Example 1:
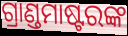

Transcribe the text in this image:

ଗ୍ରାଣ୍ଡମାଷ୍ଟରଙ୍କ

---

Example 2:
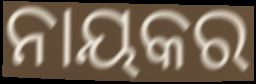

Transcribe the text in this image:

ନାୟକର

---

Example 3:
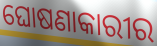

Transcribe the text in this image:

ଘୋଷଣାକାରୀର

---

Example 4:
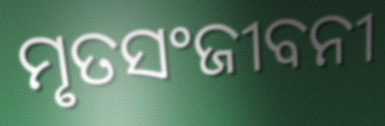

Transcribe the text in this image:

ମୃତସଂଜୀବନୀ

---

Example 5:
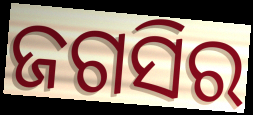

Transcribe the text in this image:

ଜଗସିର